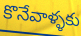
కొనేవాళ్ళకు